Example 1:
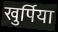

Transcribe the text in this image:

खुर्पिया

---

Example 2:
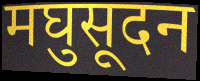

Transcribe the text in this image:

मघुसूदन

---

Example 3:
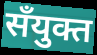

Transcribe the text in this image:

सँयुक्त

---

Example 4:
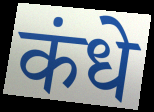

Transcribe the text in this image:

कंधे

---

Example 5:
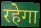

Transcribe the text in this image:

रहेगा